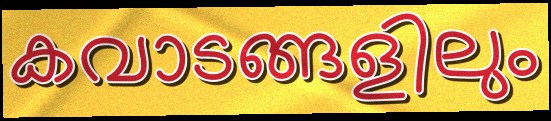
കവാടങ്ങളിലും